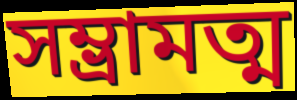
সম্ভ্রামত্ম